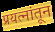
प्रयत्नांतून